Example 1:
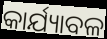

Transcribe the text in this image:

କାର୍ଯ୍ୟାବଳ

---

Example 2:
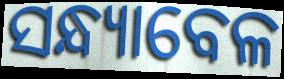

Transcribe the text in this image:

ସନ୍ଧ୍ୟାବେଳ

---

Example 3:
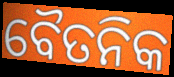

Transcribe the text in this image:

ବୈତନିକ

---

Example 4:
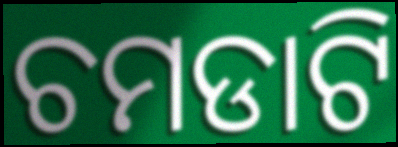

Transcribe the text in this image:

ଚମଡାଟି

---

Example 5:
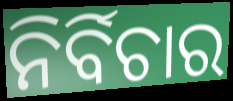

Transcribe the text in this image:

ନିର୍ବିଚାର